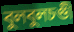
বুলবুলচণ্ডী